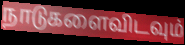
நாடுகளைவிடவும்